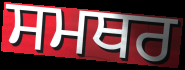
ਸਮਥਰ